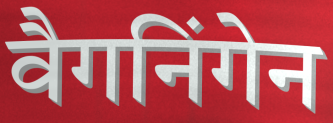
वैगनिंगेन